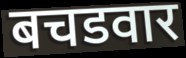
बचडवार